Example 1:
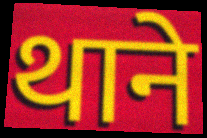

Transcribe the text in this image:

थाने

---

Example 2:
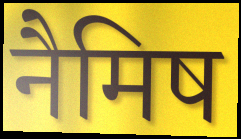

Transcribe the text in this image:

नैमिष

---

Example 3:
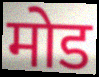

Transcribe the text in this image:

मोड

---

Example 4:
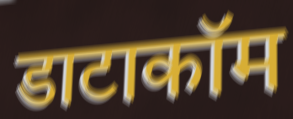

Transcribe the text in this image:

डाटाकॉम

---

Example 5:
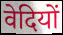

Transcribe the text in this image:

वेदियों